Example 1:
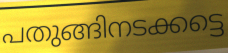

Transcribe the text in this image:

പതുങ്ങിനടക്കട്ടെ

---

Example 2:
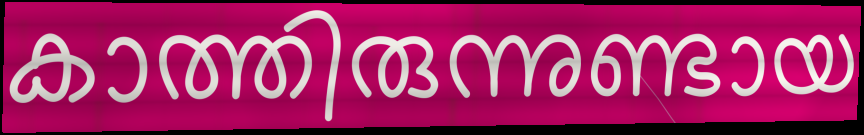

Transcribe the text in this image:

കാത്തിരുന്നുണ്ടായ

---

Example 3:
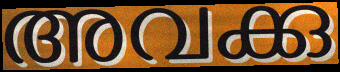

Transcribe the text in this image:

അവക്കു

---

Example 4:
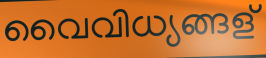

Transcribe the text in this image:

വൈവിധ്യങ്ങള്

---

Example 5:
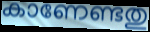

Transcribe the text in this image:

കാണേണ്ടതു